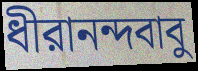
ধীরানন্দবাবু